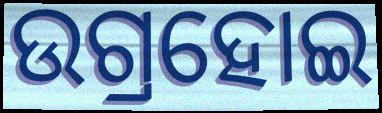
ଉଗ୍ରହୋଇ